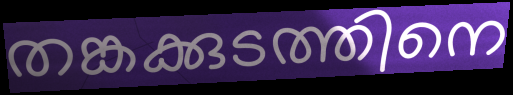
തങ്കക്കുടത്തിനെ